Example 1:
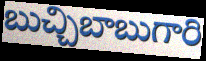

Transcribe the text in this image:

బుచ్చిబాబుగారి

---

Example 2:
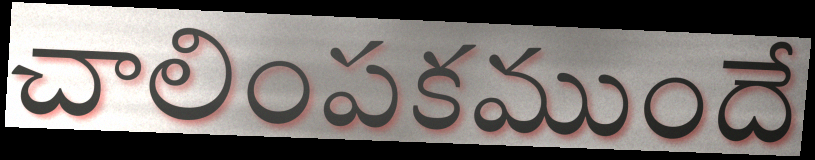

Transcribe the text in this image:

చాలింపకముందే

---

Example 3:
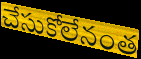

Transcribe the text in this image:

చేసుకోలేనంత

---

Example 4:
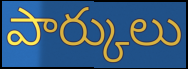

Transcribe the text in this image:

పార్కులు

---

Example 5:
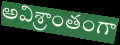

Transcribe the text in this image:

అవిశ్రాంతంగా